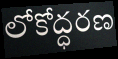
లోకోద్ధరణ